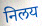
निलय